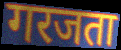
गरजता